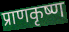
प्राणकृष्ण